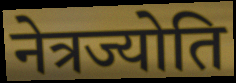
नेत्रज्योति